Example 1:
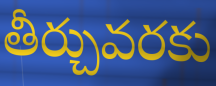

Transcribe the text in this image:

తీర్చువరకు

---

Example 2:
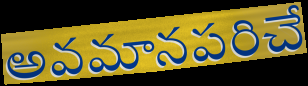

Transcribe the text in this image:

అవమానపరిచే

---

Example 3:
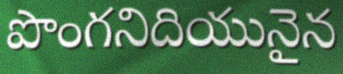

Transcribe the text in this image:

పొంగనిదియునైన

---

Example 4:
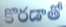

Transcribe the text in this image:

కొరడాతో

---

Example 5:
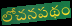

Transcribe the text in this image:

లోచనపథం